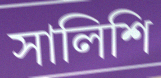
সালিশি